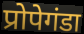
प्रोपेगंडा